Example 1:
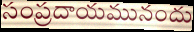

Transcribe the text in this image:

సంప్రదాయమునందు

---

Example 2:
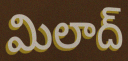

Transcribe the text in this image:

మిలాద్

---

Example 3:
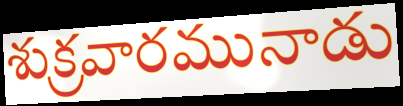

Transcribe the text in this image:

శుక్రవారమునాడు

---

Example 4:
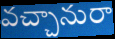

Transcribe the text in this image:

వచ్చానురా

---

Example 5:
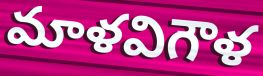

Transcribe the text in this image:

మాళవిగౌళ